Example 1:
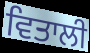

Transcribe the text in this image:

ਵਿਤਾਲੀ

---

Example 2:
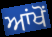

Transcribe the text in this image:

ਆਂਖੋਂ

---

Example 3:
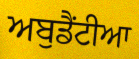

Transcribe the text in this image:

ਅਬੁਡੈਂਟੀਆ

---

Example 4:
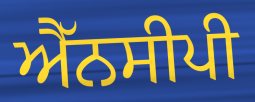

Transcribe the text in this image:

ਐੱਨਸੀਪੀ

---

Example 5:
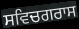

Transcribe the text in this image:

ਸਵਿਚਗਰਾਸ